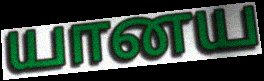
யானய